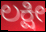
ಲಕ್ಷೀ